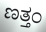
ಣತ್ತಂ